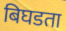
बिघडता